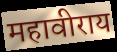
महावीराय